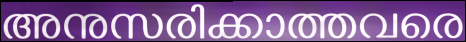
അനുസരിക്കാത്തവരെ